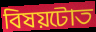
বিষয়টোত